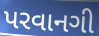
પરવાનગી